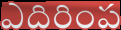
ఎదిరింప